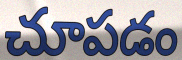
చూపడం